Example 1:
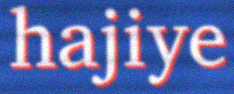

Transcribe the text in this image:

hajiye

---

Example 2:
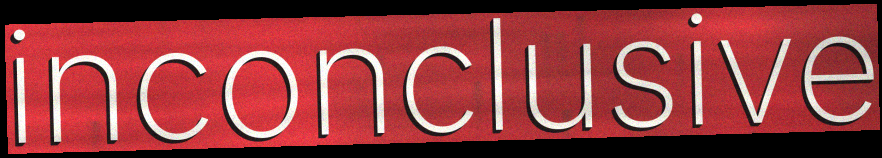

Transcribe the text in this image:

inconclusive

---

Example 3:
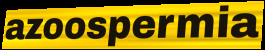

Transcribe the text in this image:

azoospermia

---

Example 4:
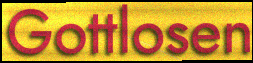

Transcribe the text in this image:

Gottlosen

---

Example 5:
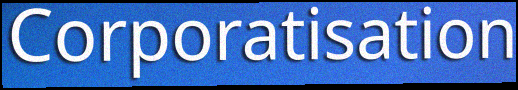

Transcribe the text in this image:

Corporatisation